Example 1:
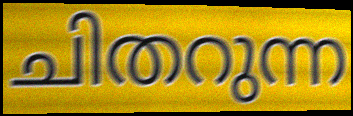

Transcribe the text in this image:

ചിതറുന്ന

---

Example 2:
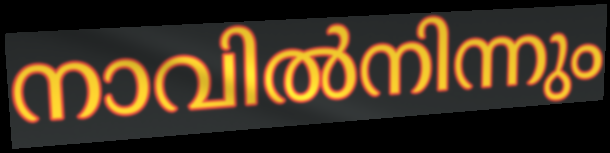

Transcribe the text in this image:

നാവിൽനിന്നും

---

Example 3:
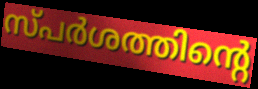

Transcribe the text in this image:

സ്പർശത്തിന്റെ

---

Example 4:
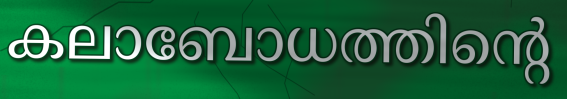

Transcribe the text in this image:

കലാബോധത്തിന്റെ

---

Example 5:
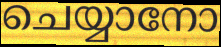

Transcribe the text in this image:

ചെയ്യാനോ